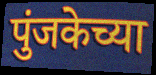
पुंजकेच्या